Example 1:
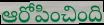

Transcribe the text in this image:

ఆరోపించింది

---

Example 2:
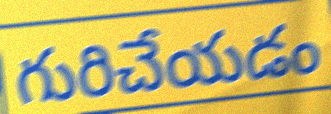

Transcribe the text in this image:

గురిచేయడం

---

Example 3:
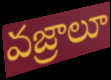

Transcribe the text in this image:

వజ్రాలూ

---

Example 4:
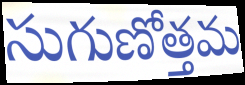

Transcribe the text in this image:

సుగుణోత్తమ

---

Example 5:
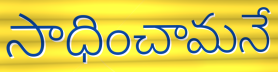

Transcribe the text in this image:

సాధించామనే